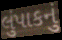
લુંપાકનું